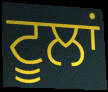
ਟੂਲਾਂ